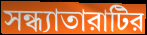
সন্ধ্যাতারাটির